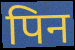
पिन